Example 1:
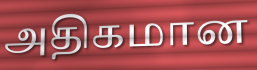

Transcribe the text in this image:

அதிகமான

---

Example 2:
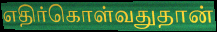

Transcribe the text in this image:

எதிர்கொள்வதுதான்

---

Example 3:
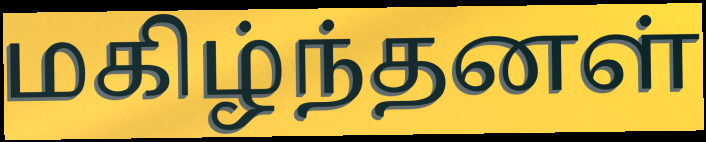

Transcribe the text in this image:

மகிழ்ந்தனள்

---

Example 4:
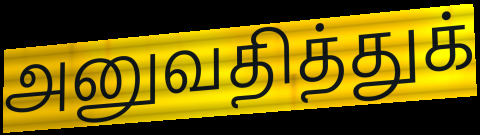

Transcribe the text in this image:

அனுவதித்துக்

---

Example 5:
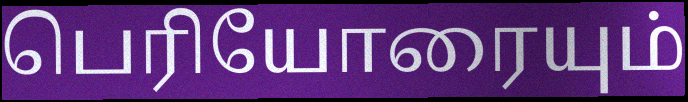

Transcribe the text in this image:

பெரியோரையும்